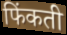
फिंकती